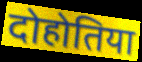
दोहोतिया